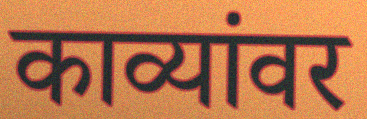
काव्यांवर